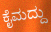
ಕೈಮದ್ದು